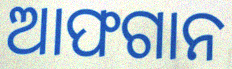
ଆଫଗାନ